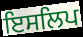
ਇਸਲਿਪ